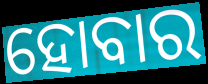
ହୋବାର